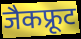
जैकफ्रूट